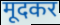
मूदकर